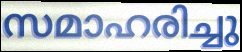
സമാഹരിച്ചു